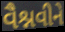
વૈશ્નવીને